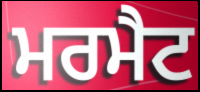
ਮਰਮੈਟ